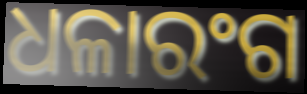
ଧଳାରଂଗ